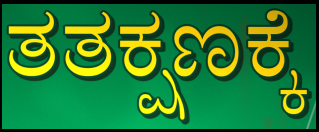
ತತಕ್ಷಣಕ್ಕೆ